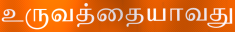
உருவத்தையாவது